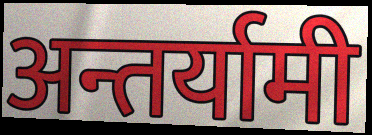
अन्तर्यामी